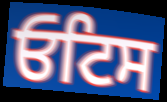
ਓਟਿਸ